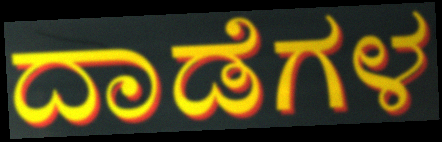
ದಾಡೆಗಳ